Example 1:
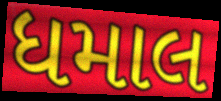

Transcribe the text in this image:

ધમાલ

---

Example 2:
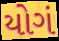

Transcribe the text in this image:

યોગં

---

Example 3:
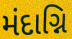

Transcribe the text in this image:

મંદાગ્નિ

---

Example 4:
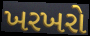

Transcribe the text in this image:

ખરખરો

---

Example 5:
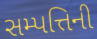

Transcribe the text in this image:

સમ્પત્તિની